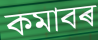
কমাবৰ